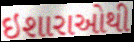
ઇશારાઓથી